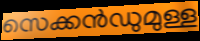
സെക്കൻഡുമുള്ള